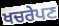
ਖਚਰੇਪਣ